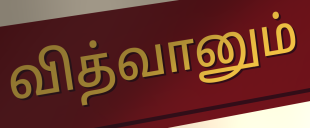
வித்வானும்